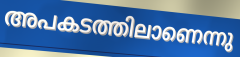
അപകടത്തിലാണെന്നു